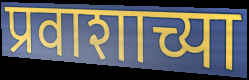
प्रवाशाच्या